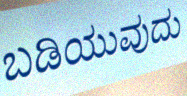
ಬಡಿಯುವುದು